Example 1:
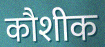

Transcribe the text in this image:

कौशीक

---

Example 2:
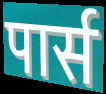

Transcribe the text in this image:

पार्स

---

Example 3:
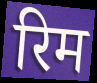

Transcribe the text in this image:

रिम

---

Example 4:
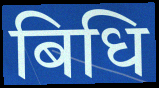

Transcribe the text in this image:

बिधि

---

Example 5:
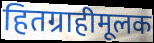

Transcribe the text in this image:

हितग्राहीमूलक